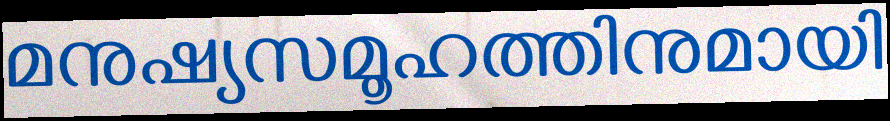
മനുഷ്യസമൂഹത്തിനുമായി